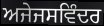
ਅਜੇਜਸਵਿੰਦਰ